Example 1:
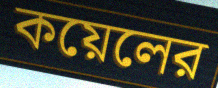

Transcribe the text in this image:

কয়েলের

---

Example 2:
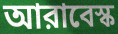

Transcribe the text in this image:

আরাবেস্ক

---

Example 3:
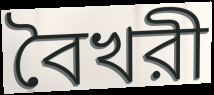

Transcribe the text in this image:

বৈখরী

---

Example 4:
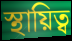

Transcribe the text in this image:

স্থায়িত্ব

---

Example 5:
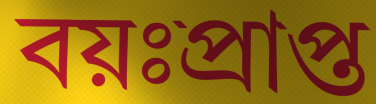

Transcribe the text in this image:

বয়ঃপ্রাপ্ত